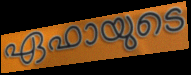
ഏഫായുടെ